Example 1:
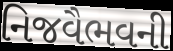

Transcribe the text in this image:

નિજવૈભવની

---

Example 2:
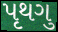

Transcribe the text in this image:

પૃથગુ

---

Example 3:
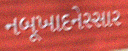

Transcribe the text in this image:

નબૂખાદનેસ્સાર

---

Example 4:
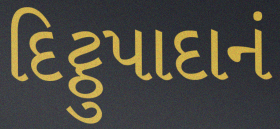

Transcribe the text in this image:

દિટ્ઠુપાદાનં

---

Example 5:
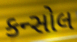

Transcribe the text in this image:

કન્સોલ